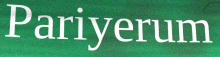
Pariyerum